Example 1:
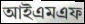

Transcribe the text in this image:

আইএমএফ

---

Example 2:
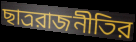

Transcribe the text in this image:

ছাত্ররাজনীতির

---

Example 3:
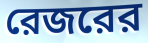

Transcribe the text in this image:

রেজরের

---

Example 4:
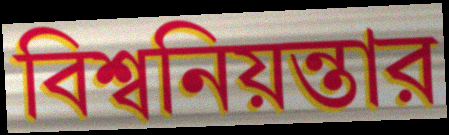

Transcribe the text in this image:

বিশ্বনিয়ন্তার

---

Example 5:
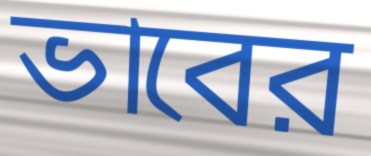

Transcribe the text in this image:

ভাবের